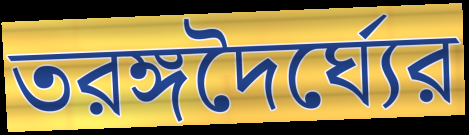
তরঙ্গদৈর্ঘ্যের